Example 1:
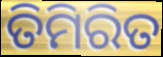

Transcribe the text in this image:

ତିମିରିତ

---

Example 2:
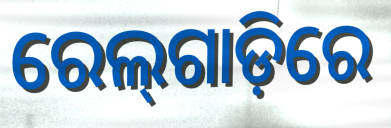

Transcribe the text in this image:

ରେଲ୍‌ଗାଡ଼ିରେ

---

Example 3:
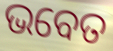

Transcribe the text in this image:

ଭବେତ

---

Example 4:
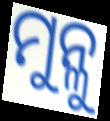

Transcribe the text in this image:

ମୁନ୍ଳୁ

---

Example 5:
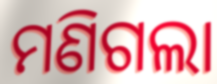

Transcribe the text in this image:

ମଣିଗଲା